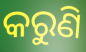
କରୁଣି